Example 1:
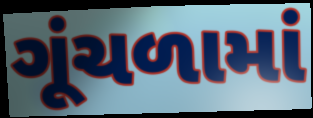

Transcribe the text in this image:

ગૂંચળામાં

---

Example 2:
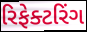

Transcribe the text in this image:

રિફેક્ટરિંગ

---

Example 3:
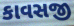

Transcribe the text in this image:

કાવસજી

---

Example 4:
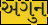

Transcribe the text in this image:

અગુન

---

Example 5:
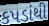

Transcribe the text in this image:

કપડાંથી